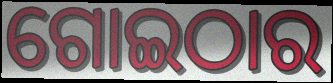
ଗୋଇଠାର